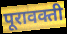
पूरावक्ती